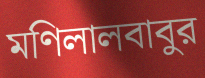
মণিলালবাবুর